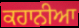
ਕਹਾਨੀਆ